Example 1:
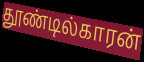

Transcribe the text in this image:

தூண்டில்காரன்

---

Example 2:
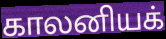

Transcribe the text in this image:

காலனியக்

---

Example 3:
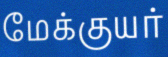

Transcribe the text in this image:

மேக்குயர்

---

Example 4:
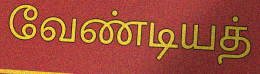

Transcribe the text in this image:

வேண்டியத்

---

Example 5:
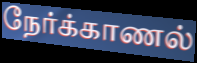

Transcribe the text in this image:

நேர்க்காணல்